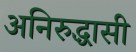
अनिरुद्धासी